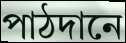
পাঠদানে